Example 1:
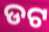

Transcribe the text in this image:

ଡଟ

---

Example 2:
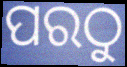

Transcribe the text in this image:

ପରଠୁ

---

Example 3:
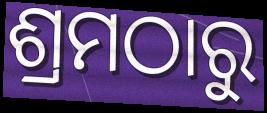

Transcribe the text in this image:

ଶ୍ରମଠାରୁ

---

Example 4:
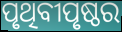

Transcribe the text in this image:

ପୃଥିବୀପୃଷ୍ଠର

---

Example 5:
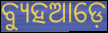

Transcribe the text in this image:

ବ୍ୟୁହଆଡ଼େ